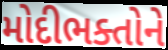
મોદીભક્તોને